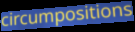
circumpositions